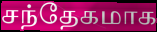
சந்தேகமாக